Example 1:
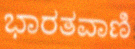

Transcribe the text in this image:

ಭಾರತವಾಣಿ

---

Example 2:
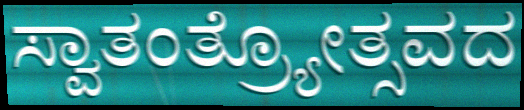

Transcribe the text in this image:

ಸ್ವಾತಂತ್ರ್ಯೋತ್ಸವದ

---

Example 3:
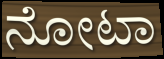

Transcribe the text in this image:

ನೋಟಾ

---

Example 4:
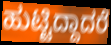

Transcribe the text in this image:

ಹುಟ್ಟಿದ್ದಾದರೆ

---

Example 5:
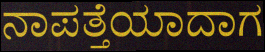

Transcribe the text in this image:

ನಾಪತ್ತೆಯಾದಾಗ